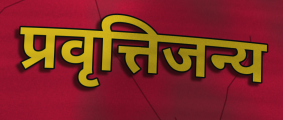
प्रवृत्तिजन्य